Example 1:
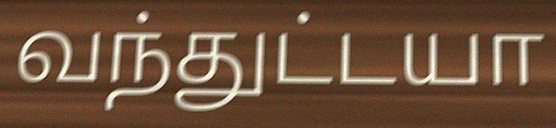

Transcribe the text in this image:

வந்துட்டயா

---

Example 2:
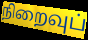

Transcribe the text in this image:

நிறைவுப்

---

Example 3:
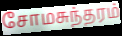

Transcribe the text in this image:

சோமசுந்தரம்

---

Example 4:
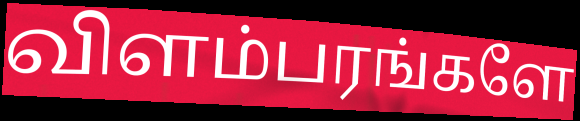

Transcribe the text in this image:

விளம்பரங்களே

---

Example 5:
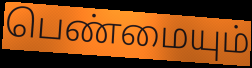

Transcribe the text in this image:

பெண்மையும்